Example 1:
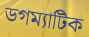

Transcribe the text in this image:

ডগম্যাটিক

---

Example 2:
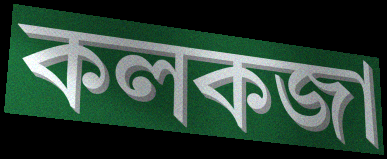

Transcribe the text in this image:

কলকজা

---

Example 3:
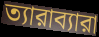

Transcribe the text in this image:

ত্যারাব্যারা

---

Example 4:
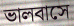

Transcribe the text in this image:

ভালবাসে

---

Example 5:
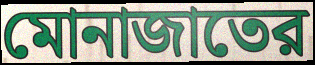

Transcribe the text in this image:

মোনাজাতের